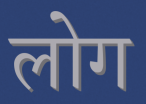
लोग